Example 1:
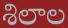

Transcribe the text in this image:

శిలాల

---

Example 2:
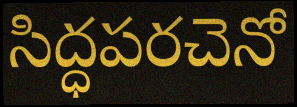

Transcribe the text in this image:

సిద్ధపరచెనో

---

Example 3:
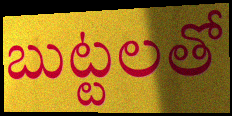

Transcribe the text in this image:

బుట్టలతో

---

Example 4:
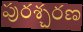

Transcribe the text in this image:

పురశ్చరణ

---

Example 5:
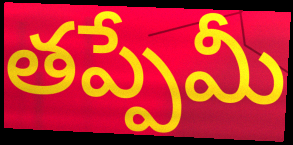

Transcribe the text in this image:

తప్పేమీ